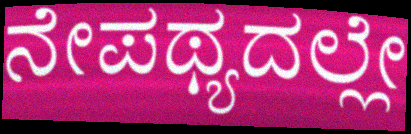
ನೇಪಥ್ಯದಲ್ಲೇ